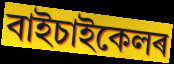
বাইচাইকেলৰ